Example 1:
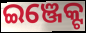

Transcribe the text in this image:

ଇଞ୍ଜେକ୍ଟ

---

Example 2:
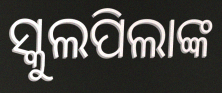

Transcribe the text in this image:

ସ୍କୁଲପିଲାଙ୍କ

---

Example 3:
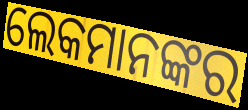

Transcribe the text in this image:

ଲେକମାନଙ୍କର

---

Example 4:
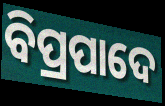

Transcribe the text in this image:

ବିପ୍ରପାଦେ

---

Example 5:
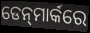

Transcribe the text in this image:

ଡେନ୍‍ମାର୍କରେ